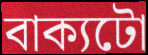
বাক্যটো